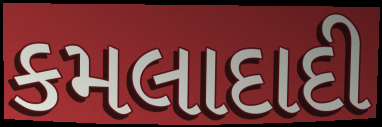
કમલાદાદી